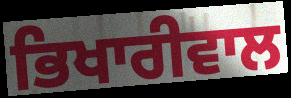
ਭਿਖਾਰੀਵਾਲ